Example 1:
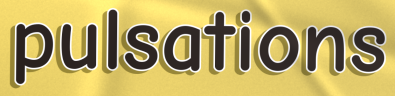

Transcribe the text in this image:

pulsations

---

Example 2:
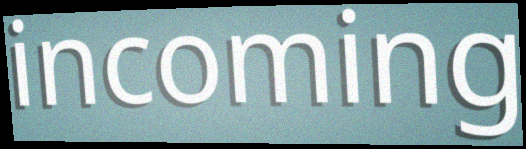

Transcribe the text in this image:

incoming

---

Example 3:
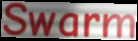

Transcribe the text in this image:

Swarm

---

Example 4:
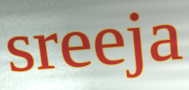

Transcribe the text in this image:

sreeja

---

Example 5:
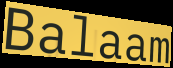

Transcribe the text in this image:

Balaam